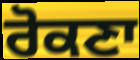
ਰੋਕਣਾ